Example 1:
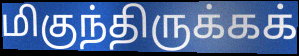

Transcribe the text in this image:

மிகுந்திருக்கக்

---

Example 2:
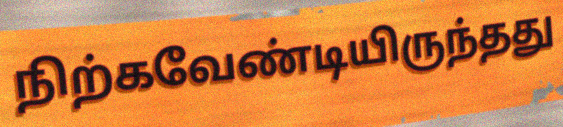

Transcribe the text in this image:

நிற்கவேண்டியிருந்தது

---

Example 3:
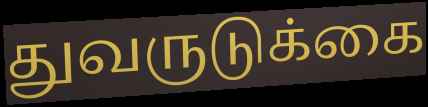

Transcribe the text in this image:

துவருடுக்கை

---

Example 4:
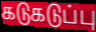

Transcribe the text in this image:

கடுகடுப்பு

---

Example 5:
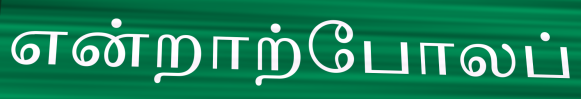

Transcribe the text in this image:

என்றாற்போலப்